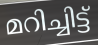
മറിച്ചിട്ട്